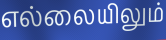
எல்லையிலும்